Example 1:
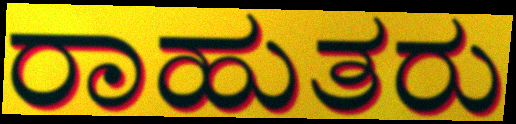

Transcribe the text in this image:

ರಾಹುತರು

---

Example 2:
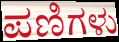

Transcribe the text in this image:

ಪಣಿಗಳು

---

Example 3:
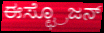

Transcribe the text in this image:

ಈಸ್ಟ್ರೊಜನ್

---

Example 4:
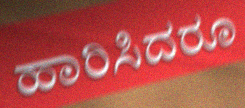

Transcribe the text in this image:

ಹಾರಿಸಿದರೂ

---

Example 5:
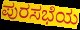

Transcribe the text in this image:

ಪುರಸಭೆಯ